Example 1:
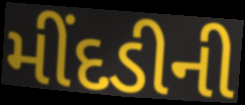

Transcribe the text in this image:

મીંદડીની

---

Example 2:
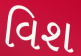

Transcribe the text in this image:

વિશ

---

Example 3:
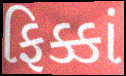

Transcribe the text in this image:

ફિક્કાં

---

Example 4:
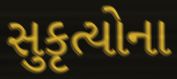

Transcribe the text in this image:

સુકૃત્યોના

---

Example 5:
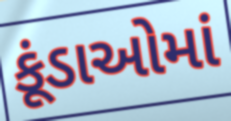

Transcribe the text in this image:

કૂંડાઓમાં